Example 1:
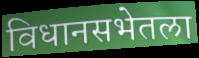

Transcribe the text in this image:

विधानसभेतला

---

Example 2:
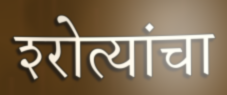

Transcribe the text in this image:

श्रोत्यांचा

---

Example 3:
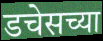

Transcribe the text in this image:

डचेसच्या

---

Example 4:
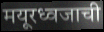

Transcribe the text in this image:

मयूरध्वजाची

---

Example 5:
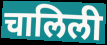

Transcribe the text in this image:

चालिली